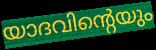
യാദവിന്റെയും